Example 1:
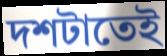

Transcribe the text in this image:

দশটাতেই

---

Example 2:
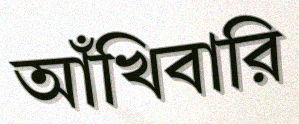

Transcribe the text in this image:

আঁখিবারি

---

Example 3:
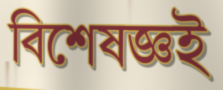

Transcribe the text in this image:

বিশেষজ্ঞই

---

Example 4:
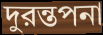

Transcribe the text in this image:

দুরন্তপনা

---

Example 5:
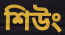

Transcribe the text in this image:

শিউং